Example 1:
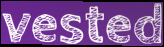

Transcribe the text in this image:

vested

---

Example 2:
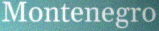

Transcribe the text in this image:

Montenegro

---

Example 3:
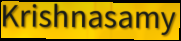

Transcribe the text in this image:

Krishnasamy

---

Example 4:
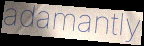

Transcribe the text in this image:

adamantly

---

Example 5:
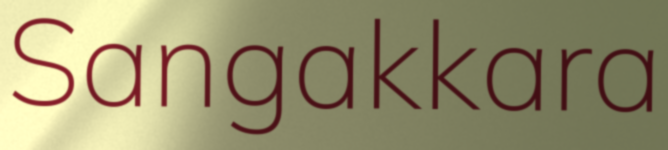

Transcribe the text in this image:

Sangakkara